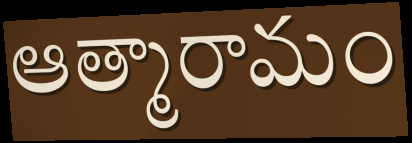
ఆత్మారామం